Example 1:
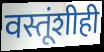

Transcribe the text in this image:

वस्तूंशीही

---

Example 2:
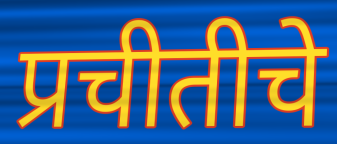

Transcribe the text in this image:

प्रचीतीचे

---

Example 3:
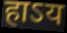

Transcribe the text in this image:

हाऽय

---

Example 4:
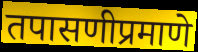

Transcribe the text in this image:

तपासणीप्रमाणे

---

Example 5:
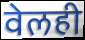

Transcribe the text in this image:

वेलही